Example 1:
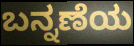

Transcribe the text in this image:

ಬನ್ನಣೆಯ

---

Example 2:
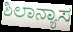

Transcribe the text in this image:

ಶಿಲಾನ್ಯಾಸ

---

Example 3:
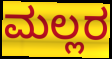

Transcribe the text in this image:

ಮಲ್ಲರ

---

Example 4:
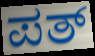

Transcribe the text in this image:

ಪತ್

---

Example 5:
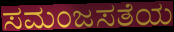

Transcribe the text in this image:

ಸಮಂಜಸತೆಯ